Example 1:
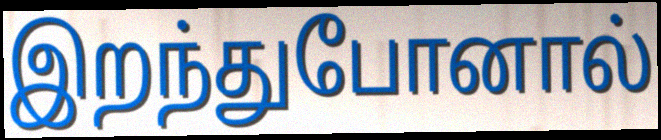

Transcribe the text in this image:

இறந்துபோனால்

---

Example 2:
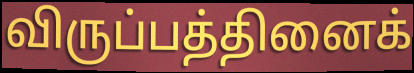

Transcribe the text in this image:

விருப்பத்தினைக்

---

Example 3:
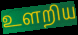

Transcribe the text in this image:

உளறிய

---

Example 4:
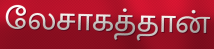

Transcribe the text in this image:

லேசாகத்தான்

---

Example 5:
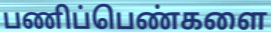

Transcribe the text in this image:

பணிப்பெண்களை